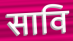
सावि